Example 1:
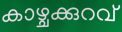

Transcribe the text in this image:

കാഴ്ചക്കുറവ്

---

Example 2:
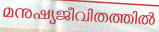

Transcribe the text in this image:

മനുഷ്യജീവിതത്തിൽ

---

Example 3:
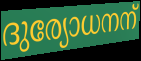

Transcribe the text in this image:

ദുര്യോധനന്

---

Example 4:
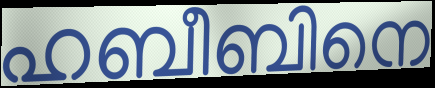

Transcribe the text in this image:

ഹബീബിനെ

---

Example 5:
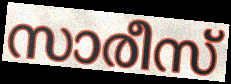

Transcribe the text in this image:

സാരീസ്